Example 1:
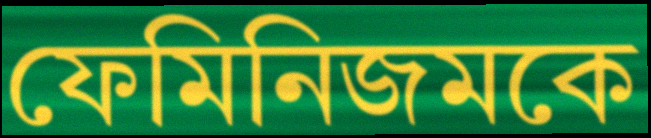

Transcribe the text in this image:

ফেমিনিজমকে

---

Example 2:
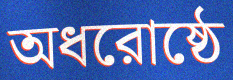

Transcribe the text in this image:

অধরোষ্ঠে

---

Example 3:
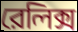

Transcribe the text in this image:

রেলিক্স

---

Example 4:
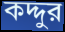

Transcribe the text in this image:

কদ্দুর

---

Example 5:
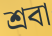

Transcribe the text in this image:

শ্রবা